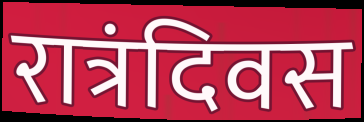
रात्रंदिवस